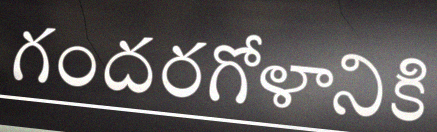
గందరగోళానికి